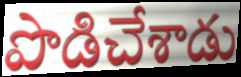
పొడిచేశాడు